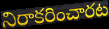
నిరాకరించారట